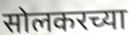
सोलकरच्या